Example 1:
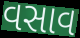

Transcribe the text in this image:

વસાવ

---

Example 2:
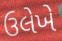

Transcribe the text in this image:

ઉલેખે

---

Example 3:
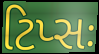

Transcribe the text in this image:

ટિપ્સઃ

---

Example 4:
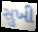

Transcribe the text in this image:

સુખી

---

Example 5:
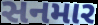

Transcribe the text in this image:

સનમાર